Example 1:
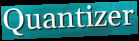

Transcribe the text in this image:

Quantizer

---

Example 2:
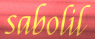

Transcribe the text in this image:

sabolil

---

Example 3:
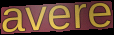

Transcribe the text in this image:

avere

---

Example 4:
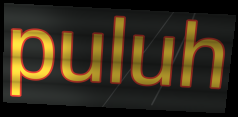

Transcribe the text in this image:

puluh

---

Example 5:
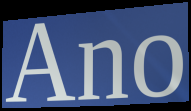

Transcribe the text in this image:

Ano